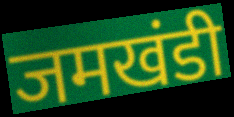
जमखंडी